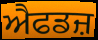
ਐਫਡਜ਼